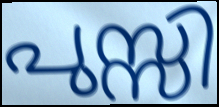
പുസ്സി